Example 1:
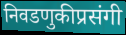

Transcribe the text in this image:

निवडणुकीप्रसंगी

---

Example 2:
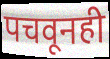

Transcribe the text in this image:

पचवूनही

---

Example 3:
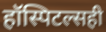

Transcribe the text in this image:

हॉस्पिटल्सही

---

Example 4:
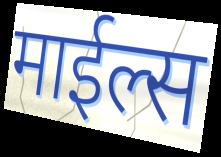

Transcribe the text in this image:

माईल्स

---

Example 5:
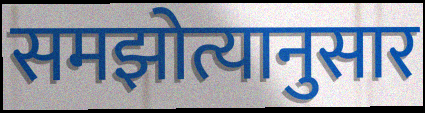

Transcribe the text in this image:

समझोत्यानुसार